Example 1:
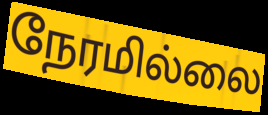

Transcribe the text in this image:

நேரமில்லை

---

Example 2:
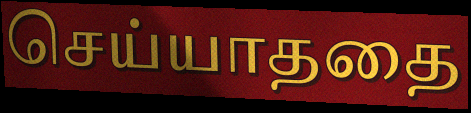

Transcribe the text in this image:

செய்யாததை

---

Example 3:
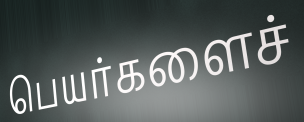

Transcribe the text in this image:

பெயர்களைச்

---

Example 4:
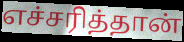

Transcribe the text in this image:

எச்சரித்தான்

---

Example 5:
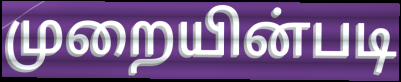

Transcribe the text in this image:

முறையின்படி